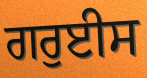
ਗਰੁਈਸ